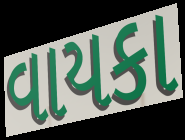
વાયકા